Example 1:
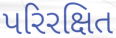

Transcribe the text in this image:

પરિરક્ષિત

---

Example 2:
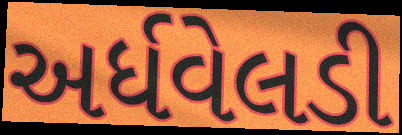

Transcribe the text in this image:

અર્ધવેલડી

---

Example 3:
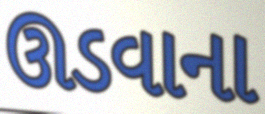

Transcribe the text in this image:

ઊડવાના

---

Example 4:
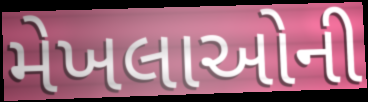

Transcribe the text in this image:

મેખલાઓની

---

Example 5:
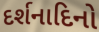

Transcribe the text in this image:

દર્શનાદિનો